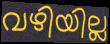
വഴിയില്ല